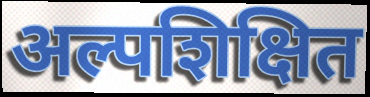
अल्पशिक्षित